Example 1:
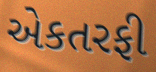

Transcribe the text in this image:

એકતરફી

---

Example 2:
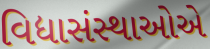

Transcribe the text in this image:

વિદ્યાસંસ્થાઓએ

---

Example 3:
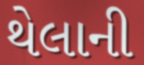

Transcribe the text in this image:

થેલાની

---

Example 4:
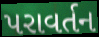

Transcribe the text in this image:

પરાવર્તન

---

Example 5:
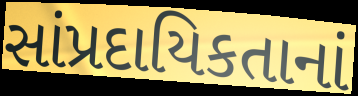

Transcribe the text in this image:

સાંપ્રદાયિકતાનાં